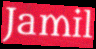
Jamil